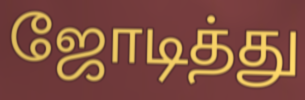
ஜோடித்து